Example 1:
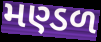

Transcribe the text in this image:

મણ્ડળ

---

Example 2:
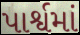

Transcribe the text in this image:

પાર્શ્વમાં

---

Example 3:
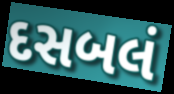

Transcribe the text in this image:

દસબલં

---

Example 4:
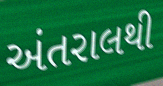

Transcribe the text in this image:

અંતરાલથી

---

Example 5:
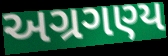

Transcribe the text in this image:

અગ્રગણ્ય